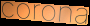
corona